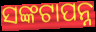
ସଙ୍କଟାପନ୍ନ